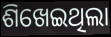
ଶିଖେଇଥିଲା